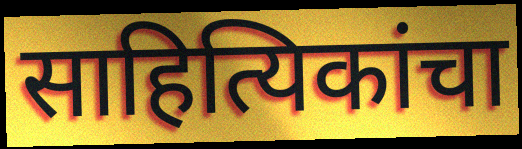
साहित्यिकांचा